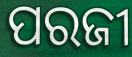
ପରଜୀ